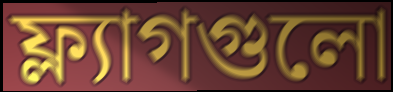
ফ্ল্যাগগুলো